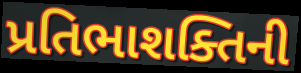
પ્રતિભાશક્તિની